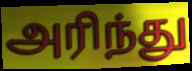
அரிந்து